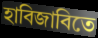
হাবিজাবিতে